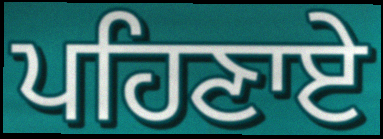
ਪਹਿਣਾਏ